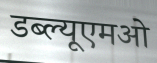
डब्ल्यूएमओ